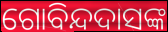
ଗୋବିନ୍ଦଦାସଙ୍କ